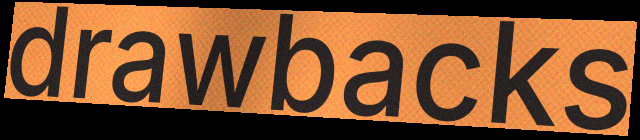
drawbacks